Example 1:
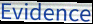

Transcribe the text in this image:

Evidence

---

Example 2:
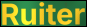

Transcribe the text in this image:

Ruiter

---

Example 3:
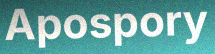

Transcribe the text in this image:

Apospory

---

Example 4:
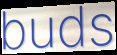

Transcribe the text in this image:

buds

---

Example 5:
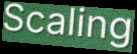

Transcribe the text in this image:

Scaling